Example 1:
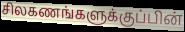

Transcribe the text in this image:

சிலகணங்களுக்குப்பின்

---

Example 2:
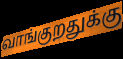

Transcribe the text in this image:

வாங்குறதுக்கு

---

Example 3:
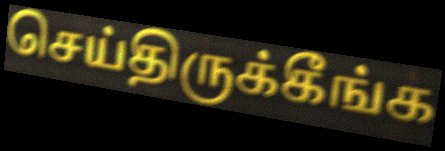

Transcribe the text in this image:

செய்திருக்கீங்க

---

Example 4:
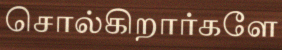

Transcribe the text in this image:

சொல்கிறார்களே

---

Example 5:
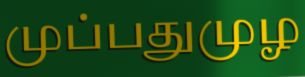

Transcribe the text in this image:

முப்பதுமுழ